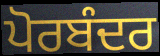
ਪੋਰਬੰਦਰ